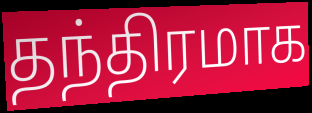
தந்திரமாக